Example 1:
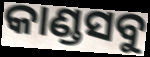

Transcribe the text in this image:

କାଣ୍ଡସବୁ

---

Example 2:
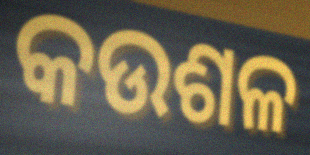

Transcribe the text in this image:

କଉଶଳ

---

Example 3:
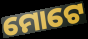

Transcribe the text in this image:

ମୋଟେ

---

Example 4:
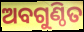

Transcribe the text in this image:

ଅବଗୁଣ୍ଠିତ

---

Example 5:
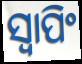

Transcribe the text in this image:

ସ୍ବାପିଂ